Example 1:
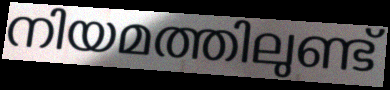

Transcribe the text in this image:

നിയമത്തിലുണ്ട്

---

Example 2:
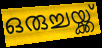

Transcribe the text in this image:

ഒരുച്ചയ്ക്ക്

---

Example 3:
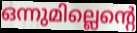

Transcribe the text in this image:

ഒന്നുമില്ലെന്റെ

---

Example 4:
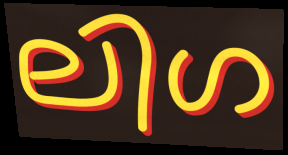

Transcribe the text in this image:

ലിഗ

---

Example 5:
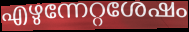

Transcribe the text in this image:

എഴുന്നേറ്റശേഷം